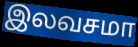
இலவசமா